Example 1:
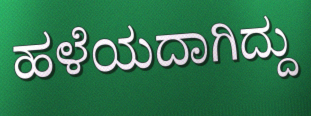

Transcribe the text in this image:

ಹಳೆಯದಾಗಿದ್ದು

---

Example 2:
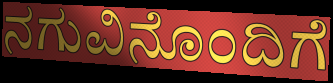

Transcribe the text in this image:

ನಗುವಿನೊಂದಿಗೆ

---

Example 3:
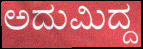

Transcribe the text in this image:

ಅದುಮಿದ್ದ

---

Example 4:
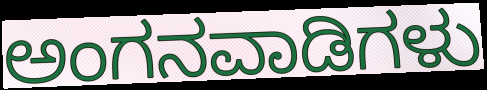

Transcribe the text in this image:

ಅಂಗನವಾಡಿಗಳು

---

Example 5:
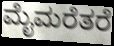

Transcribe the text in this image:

ಮೈಮರೆತರೆ